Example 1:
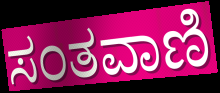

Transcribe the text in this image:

ಸಂತವಾಣಿ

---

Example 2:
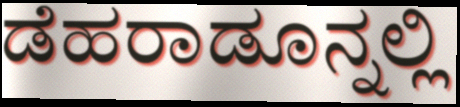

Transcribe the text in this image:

ಡೆಹರಾಡೂನ್ನಲ್ಲಿ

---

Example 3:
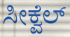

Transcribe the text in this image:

ಸೀಕ್ವೆಲ್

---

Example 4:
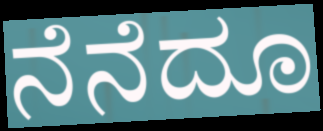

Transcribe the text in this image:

ನೆನೆದೂ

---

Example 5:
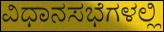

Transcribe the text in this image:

ವಿಧಾನಸಭೆಗಳಲ್ಲಿ